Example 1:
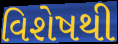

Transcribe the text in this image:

વિશેષથી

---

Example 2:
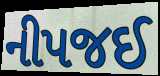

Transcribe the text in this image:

નીપજઈ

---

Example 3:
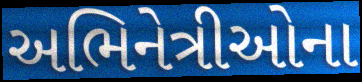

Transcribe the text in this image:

અભિનેત્રીઓના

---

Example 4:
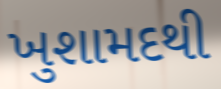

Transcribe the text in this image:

ખુશામદથી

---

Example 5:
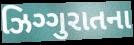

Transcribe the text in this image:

ઝિગ્ગુરાતના